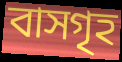
বাসগৃহ